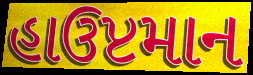
હાઉપ્ટમાન